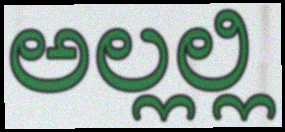
ಅಲ್ಲಲ್ಲಿ